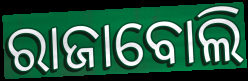
ରାଜାବୋଲି